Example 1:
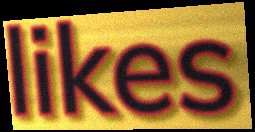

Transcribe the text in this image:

likes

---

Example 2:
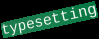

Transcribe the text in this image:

typesetting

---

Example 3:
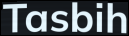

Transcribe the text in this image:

Tasbih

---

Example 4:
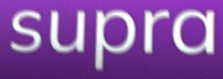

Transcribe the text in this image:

supra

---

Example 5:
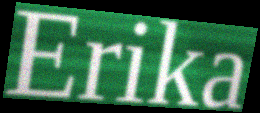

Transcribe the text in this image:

Erika